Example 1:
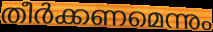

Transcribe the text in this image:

തീർക്കണമെന്നും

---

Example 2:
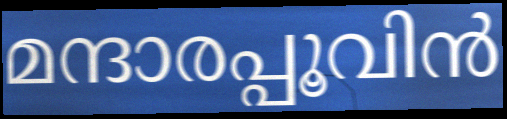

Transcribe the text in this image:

മന്ദാരപ്പൂവിൻ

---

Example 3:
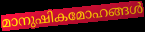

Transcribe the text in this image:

മാനുഷികമോഹങ്ങൾ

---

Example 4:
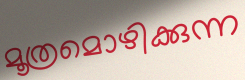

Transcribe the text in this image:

മൂത്രമൊഴിക്കുന്ന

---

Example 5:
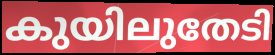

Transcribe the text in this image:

കുയിലുതേടി